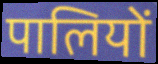
पालियों